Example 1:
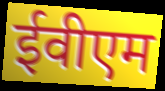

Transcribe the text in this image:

ईवीएम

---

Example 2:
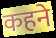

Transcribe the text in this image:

कहने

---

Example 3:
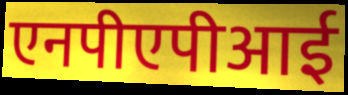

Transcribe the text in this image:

एनपीएपीआई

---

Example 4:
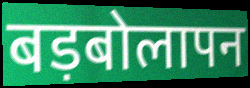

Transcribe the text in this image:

बड़बोलापन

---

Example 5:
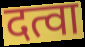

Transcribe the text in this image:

दत्वा